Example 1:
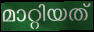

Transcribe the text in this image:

മാറ്റിയത്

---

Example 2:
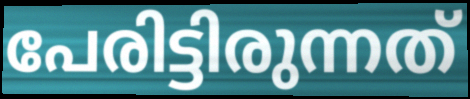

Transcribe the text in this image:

പേരിട്ടിരുന്നത്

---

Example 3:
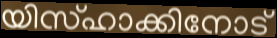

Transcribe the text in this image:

യിസ്ഹാക്കിനോട്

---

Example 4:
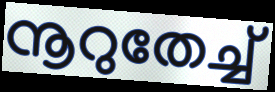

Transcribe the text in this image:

നൂറുതേച്ച്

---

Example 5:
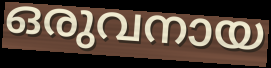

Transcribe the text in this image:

ഒരുവനായ